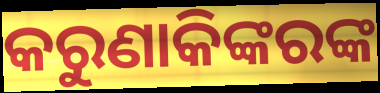
କରୁଣାକିଙ୍କରଙ୍କ